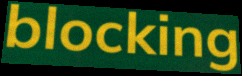
blocking